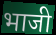
भाजी